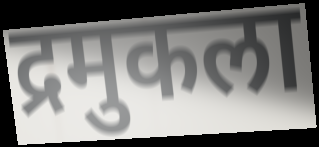
द्रमुकला